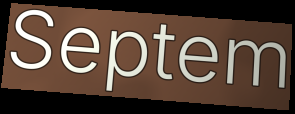
Septem